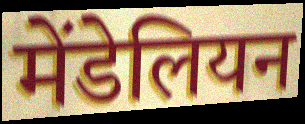
मेंडेलियन